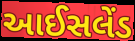
આઈસલેંડ